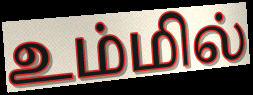
உம்மில்